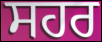
ਸਹਰ